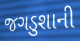
જગડુશાની